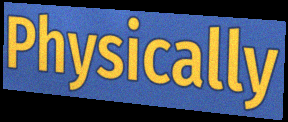
Physically